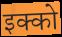
इक्को